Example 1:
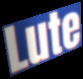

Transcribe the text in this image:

Lute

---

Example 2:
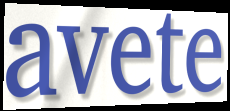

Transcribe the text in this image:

avete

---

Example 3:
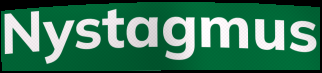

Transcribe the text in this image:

Nystagmus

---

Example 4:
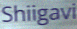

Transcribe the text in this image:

Shiigavi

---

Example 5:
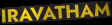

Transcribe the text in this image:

IRAVATHAM